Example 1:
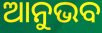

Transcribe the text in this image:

ଆନୁଭବ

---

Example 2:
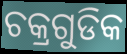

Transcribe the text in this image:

ଚକ୍ରଗୁଡିକ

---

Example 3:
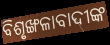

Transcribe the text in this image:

ବିଶୃଙ୍ଖଳାବାଦୀଙ୍କ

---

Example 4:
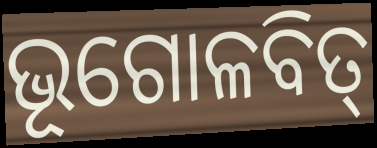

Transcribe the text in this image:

ଭୂଗୋଳବିତ୍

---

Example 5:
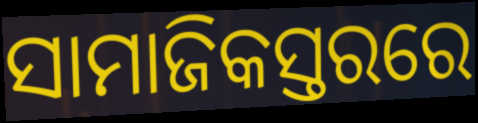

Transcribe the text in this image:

ସାମାଜିକସ୍ତରରେ